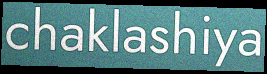
chaklashiya